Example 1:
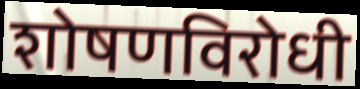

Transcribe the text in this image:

शोषणविरोधी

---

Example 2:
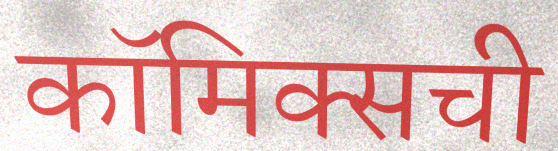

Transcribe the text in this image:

कॉमिक्सची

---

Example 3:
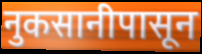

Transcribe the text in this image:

नुकसानीपासून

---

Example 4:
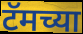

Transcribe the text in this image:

टॅमच्या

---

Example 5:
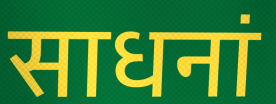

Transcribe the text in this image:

साधनां